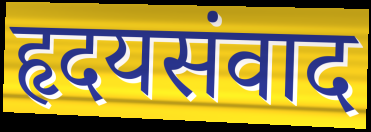
हृदयसंवाद